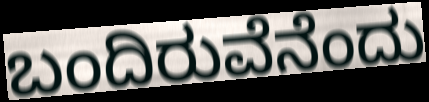
ಬಂದಿರುವೆನೆಂದು